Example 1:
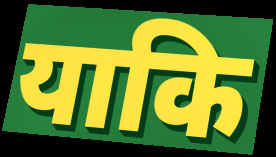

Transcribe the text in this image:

याकि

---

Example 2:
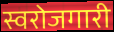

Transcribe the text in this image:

स्वरोजगारी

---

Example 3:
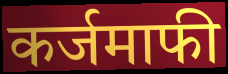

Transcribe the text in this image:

कर्जमाफी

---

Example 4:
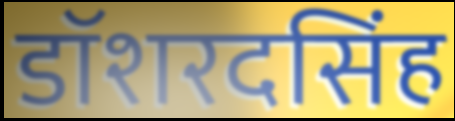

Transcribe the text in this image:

डॉशरदसिंह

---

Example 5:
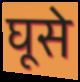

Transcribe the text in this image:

घूसे